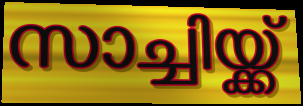
സാച്ചിയ്ക്ക്